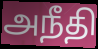
அநீதி